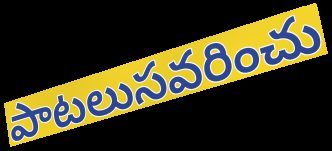
పాటలుసవరించు